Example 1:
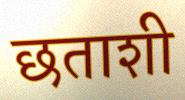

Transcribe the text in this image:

छताशी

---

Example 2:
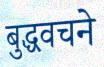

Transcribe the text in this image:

बुद्धवचने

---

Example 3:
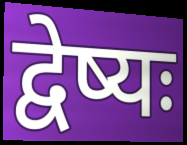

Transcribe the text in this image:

द्वेष्यः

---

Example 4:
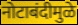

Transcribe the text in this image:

नोटाबंदीमुळे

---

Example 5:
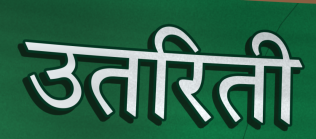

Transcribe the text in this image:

उतरिती